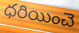
ధరియించె